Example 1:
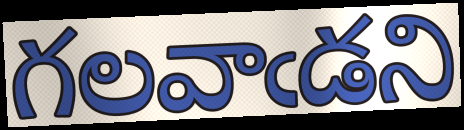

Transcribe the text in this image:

గలవాఁడని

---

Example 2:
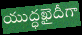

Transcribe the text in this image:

యుద్ధఖైదీగా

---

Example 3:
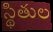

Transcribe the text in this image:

స్థితుల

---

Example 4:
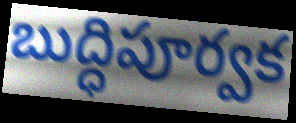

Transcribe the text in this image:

బుద్ధిపూర్వక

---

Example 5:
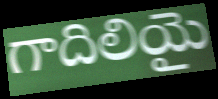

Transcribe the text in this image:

గాదిలియై